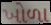
ખોળા